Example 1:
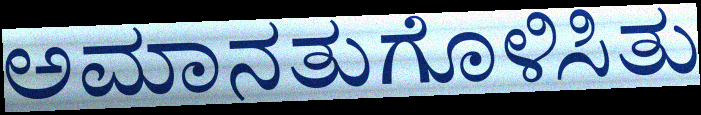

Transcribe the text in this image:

ಅಮಾನತುಗೊಳಿಸಿತು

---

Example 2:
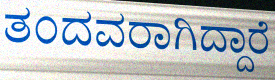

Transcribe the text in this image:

ತಂದವರಾಗಿದ್ದಾರೆ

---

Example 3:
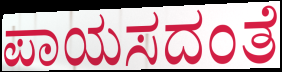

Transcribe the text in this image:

ಪಾಯಸದಂತೆ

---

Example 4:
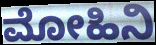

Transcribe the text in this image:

ಮೋಹಿನಿ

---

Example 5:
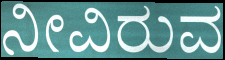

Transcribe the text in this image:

ನೀವಿರುವ